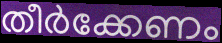
തീർക്കേണം